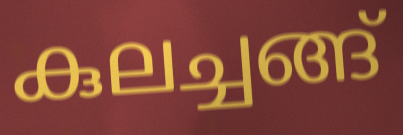
കുലച്ചങ്ങ്